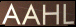
AAHL